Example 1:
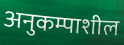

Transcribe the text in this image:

अनुकम्पाशील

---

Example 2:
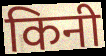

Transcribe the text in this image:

किनी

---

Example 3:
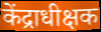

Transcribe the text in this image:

केंद्राधीक्षक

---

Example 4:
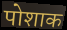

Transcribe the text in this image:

पोशाक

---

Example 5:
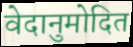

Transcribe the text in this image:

वेदानुमोदित